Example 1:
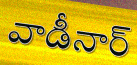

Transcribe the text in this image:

వాడీనార్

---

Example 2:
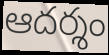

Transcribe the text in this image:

ఆదర్శం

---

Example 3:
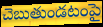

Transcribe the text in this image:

చెబుతుండటంపై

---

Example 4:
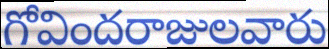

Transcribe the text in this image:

గోవిందరాజులవారు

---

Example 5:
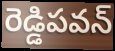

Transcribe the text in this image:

రెడ్డిపవన్